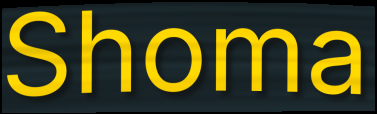
Shoma